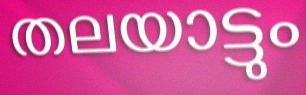
തലയാട്ടും